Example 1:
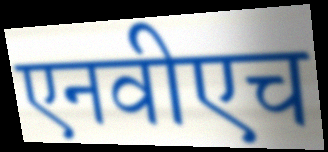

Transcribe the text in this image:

एनवीएच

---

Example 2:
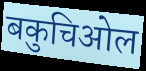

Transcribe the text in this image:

बकुचिओल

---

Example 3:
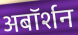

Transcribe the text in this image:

अबॉर्शन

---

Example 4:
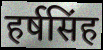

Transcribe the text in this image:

हर्षसिंह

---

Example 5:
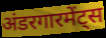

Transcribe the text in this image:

अंडरगारमेंट्स